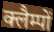
क्लैम्पों